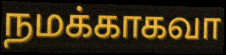
நமக்காகவா